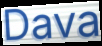
Dava